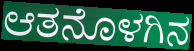
ಆತನೊಳಗಿನ